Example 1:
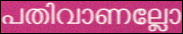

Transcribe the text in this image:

പതിവാണല്ലോ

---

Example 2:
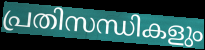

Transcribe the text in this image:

പ്രതിസന്ധികളും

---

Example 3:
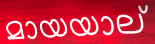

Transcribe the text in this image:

മായയാല്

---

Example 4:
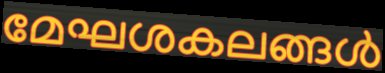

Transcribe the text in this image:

മേഘശകലങ്ങൾ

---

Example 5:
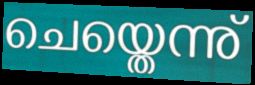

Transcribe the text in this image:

ചെയ്തെന്നു്